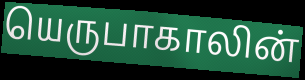
யெருபாகாலின்